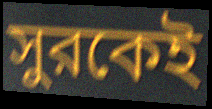
সুরকেই